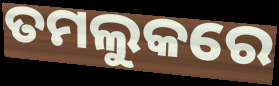
ତମଲୁକରେ